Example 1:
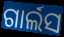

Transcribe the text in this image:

ଗାର୍ଲସ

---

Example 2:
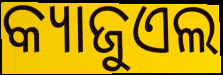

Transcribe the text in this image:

କ୍ୟାଜୁଏଲ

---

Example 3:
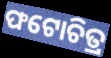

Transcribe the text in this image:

ଫଟୋଚିତ୍ର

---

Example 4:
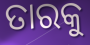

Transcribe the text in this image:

ତାରକୁ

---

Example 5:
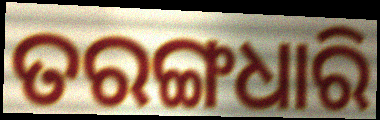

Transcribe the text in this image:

ତରଙ୍ଗଧାରି